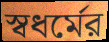
স্বধর্মের